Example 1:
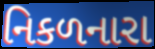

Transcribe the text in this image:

નિકળનારા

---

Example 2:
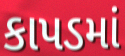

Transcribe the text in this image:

કાપડમાં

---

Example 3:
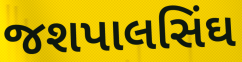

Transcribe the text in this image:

જશપાલસિંઘ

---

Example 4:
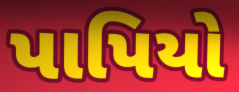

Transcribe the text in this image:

પાપિયો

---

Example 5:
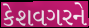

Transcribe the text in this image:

કેશવગરને